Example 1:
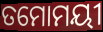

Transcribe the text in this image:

ତମୋମୟୀ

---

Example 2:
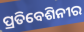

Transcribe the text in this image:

ପ୍ରତିବେଶିନୀର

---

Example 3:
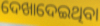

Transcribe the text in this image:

ଦେଖାଦେଇଥିବା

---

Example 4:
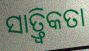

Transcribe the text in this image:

ସାତ୍ତ୍ବିକତା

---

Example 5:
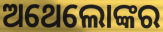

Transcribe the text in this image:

ଅଥେଲୋଙ୍କର